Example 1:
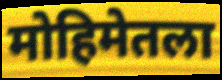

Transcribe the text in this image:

मोहिमेतला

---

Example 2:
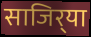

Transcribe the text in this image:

साजिर्‍या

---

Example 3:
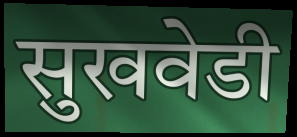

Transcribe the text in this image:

सुखवेडी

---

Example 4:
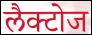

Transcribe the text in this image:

लैक्टोज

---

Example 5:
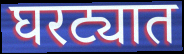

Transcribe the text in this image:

घरट्यात